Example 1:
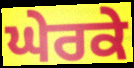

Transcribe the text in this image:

ਘੇਰਕੇ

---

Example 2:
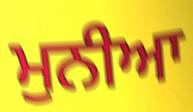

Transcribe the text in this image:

ਮੁਨੀਆ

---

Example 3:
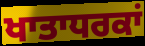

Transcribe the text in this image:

ਖਾਤਾਧਰਕਾਂ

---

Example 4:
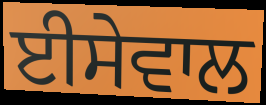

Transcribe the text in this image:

ਈਸੇਵਾਲ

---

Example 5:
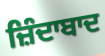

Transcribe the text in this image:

ਜ਼ਿੰਦਾਬਾਦ